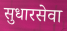
सुधारसेवा